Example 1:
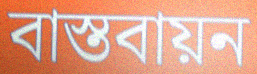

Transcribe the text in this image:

বাস্তবায়ন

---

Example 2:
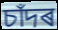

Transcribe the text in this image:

চাঁদৰ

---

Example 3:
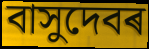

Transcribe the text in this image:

বাসুদেবৰ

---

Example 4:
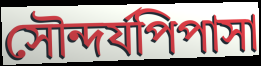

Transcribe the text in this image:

সৌন্দৰ্যপিপাসা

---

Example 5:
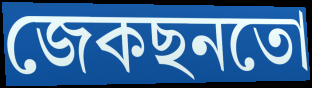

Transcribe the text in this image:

জেকছনতো